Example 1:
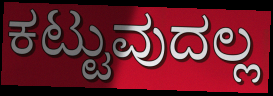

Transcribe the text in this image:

ಕಟ್ಟುವುದಲ್ಲ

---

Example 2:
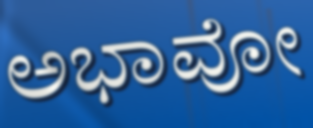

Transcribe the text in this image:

ಅಭಾವೋ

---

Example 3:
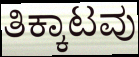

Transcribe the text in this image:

ತಿಕ್ಕಾಟವು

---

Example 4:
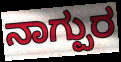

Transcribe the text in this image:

ನಾಗ್ಪುರ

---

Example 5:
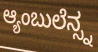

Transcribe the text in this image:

ಆ್ಯಂಬುಲೆನ್ಸ್ನ